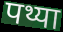
पथ्या